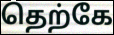
தெற்கே